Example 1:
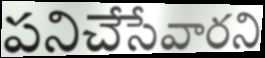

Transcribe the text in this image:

పనిచేసేవారని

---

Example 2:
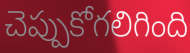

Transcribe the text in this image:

చెప్పుకోగలిగింది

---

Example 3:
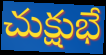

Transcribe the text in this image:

చుక్షుభే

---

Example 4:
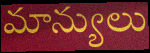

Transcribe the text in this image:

మాన్యులు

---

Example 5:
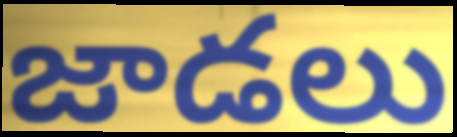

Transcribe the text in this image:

జాడలు